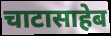
चाटासाहेब